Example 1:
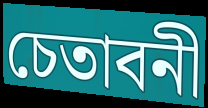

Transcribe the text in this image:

চেতাবনী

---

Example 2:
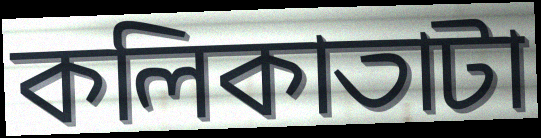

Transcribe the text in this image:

কলিকাতাটা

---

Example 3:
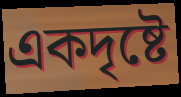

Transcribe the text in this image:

একদৃষ্টে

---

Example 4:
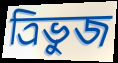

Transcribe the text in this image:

ত্রিভুজ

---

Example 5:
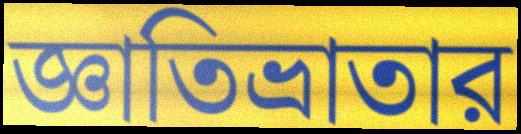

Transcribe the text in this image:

জ্ঞাতিভ্রাতার